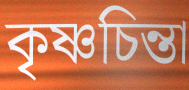
কৃষ্ণচিন্তা